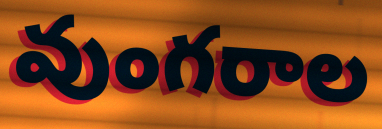
వుంగరాల